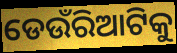
ଡେଉଁରିଆଟିକୁ